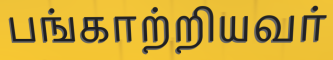
பங்காற்றியவர்